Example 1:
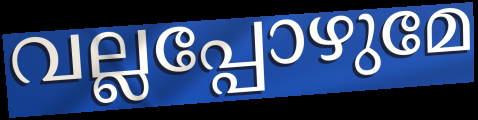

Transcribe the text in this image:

വല്ലപ്പോഴുമേ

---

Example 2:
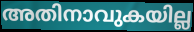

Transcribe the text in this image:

അതിനാവുകയില്ല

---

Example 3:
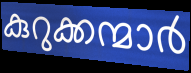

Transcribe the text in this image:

കുറുക്കന്മാർ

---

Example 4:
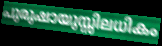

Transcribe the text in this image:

പുരുഷായുസ്സിലധികം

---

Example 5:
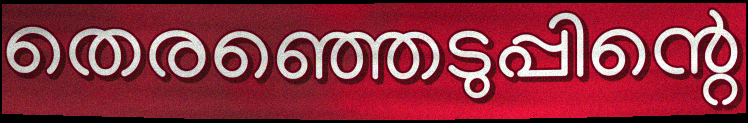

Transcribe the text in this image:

തെരഞ്ഞെടുപ്പിന്റെ